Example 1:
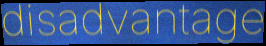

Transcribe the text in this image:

disadvantage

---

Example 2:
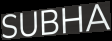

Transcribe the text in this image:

SUBHA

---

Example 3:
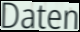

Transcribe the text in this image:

Daten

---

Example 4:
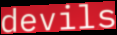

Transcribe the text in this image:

devils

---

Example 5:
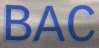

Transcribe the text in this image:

BAC